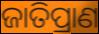
ଜାତିପ୍ରାଣ